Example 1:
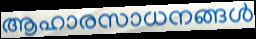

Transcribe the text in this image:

ആഹാരസാധനങ്ങൾ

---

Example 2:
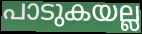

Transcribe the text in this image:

പാടുകയല്ല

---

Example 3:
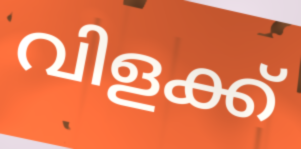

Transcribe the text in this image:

വിളക്ക്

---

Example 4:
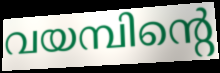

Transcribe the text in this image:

വയമ്പിന്റെ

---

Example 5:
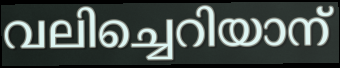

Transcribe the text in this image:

വലിച്ചെറിയാന്